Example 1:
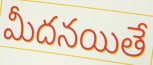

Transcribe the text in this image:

మీదనయితే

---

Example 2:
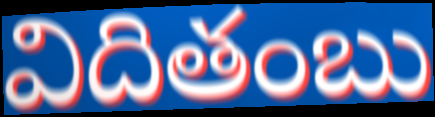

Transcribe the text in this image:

విదితంబు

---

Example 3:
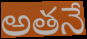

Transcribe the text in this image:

అతనే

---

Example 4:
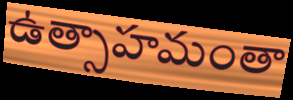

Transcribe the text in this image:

ఉత్సాహమంతా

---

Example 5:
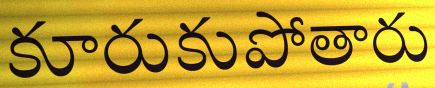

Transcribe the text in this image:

కూరుకుపోతారు